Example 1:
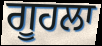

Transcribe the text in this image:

ਗੂਹਲਾ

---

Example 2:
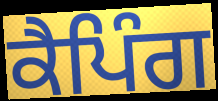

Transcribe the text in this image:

ਕੈਪਿੰਗ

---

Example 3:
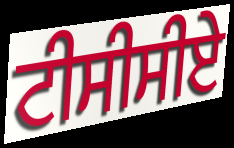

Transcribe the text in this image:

ਟੀਸੀਸੀਏ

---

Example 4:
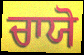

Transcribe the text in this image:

ਚਾਯੋ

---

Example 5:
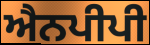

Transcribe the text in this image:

ਐਨਪੀਪੀ